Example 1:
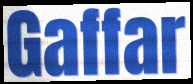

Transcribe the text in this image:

Gaffar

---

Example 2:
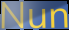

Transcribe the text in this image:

Nun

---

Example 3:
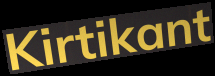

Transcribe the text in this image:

Kirtikant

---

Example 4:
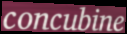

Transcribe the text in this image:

concubine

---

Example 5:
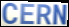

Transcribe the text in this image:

CERN